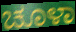
ಚೂಳಾ